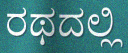
ರಥದಲ್ಲಿ